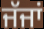
ਜੱਜਾਂ